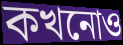
কখনোও